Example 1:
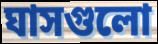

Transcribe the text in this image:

ঘাসগুলো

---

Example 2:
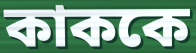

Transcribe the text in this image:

কাককে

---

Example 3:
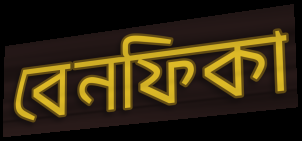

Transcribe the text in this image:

বেনফিকা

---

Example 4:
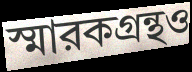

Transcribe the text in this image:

স্মারকগ্রন্থও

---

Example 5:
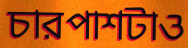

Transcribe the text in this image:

চারপাশটাও